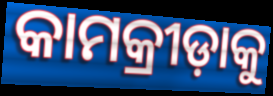
କାମକ୍ରୀଡ଼ାକୁ